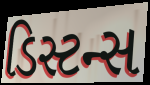
ડિસ્ટન્સ